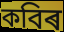
কবিৰ